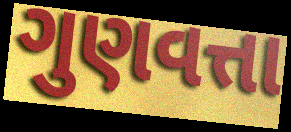
ગુણવત્તા